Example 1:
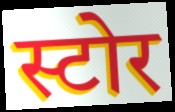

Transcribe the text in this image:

स्टोर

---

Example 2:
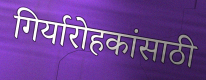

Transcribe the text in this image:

गिर्यारोहकांसाठी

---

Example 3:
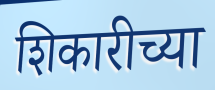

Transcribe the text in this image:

शिकारीच्या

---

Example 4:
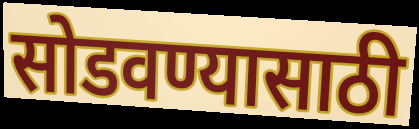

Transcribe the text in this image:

सोडवण्यासाठी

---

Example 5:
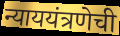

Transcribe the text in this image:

न्याययंत्रणेची